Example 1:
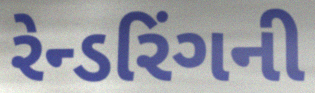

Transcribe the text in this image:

રેન્ડરિંગની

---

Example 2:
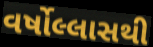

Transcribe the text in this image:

વર્ષોલ્લાસથી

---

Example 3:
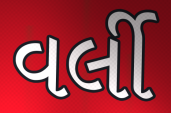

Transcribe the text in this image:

વર્લી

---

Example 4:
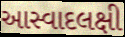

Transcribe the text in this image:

આસ્વાદલક્ષી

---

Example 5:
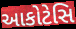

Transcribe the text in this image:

આકોટેસિ